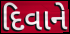
દિવાને